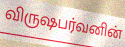
விருஷபர்வனின்